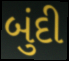
બુંદી